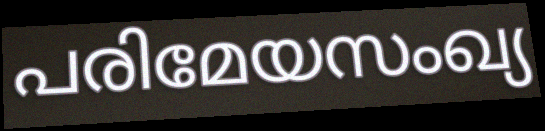
പരിമേയസംഖ്യ